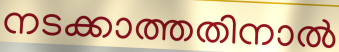
നടക്കാത്തതിനാൽ